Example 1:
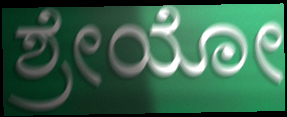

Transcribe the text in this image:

ಶ್ರೇಯೋ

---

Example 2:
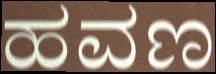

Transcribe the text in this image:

ಹವಣ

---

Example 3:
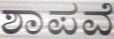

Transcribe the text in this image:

ಶಾಪವೆ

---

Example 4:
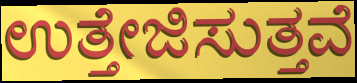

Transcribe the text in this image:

ಉತ್ತೇಜಿಸುತ್ತವೆ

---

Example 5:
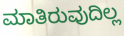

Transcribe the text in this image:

ಮಾತಿರುವುದಿಲ್ಲ